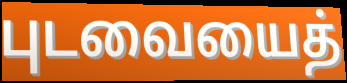
புடவையைத்